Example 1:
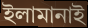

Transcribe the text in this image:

ইলামানাই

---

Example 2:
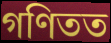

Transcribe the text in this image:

গণিতত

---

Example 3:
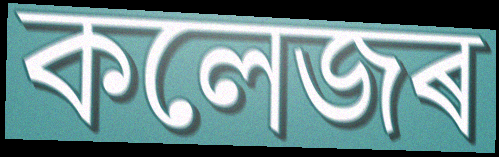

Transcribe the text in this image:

কলেজৰ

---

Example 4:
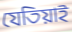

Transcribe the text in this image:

যেতিয়াই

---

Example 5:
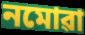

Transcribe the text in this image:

নমোৱা